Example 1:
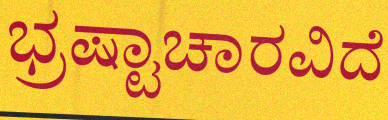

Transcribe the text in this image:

ಭ್ರಷ್ಟಾಚಾರವಿದೆ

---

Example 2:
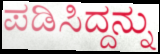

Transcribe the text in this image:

ಪಡಿಸಿದ್ದನ್ನು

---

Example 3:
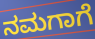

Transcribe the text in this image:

ನಮಗಾಗೆ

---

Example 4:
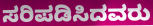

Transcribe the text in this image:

ಸರಿಪಡಿಸಿದವರು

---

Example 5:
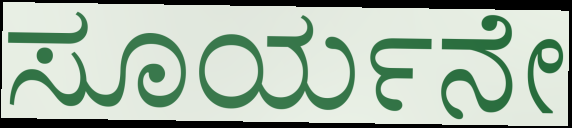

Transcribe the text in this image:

ಸೂರ್ಯನೇ